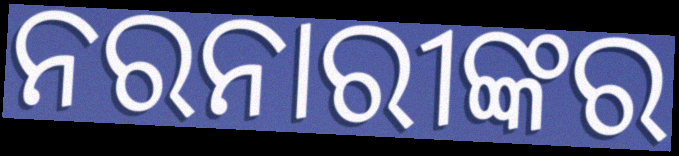
ନରନାରୀଙ୍କର